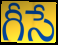
గీసే